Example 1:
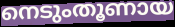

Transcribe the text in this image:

നെടുംതൂണായ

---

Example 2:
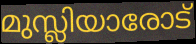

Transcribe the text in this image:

മുസ്ലിയാരോട്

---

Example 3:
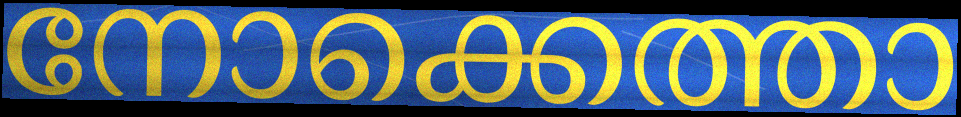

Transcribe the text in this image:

നോക്കെത്താ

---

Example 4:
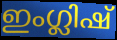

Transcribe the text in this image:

ഇംഗ്ലിഷ്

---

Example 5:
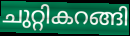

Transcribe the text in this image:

ചുറ്റികറങ്ങി